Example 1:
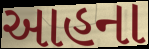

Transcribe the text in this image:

આહના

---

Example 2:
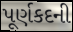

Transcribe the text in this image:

પૂર્ણકદની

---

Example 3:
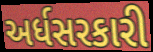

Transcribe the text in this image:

અર્ધસરકારી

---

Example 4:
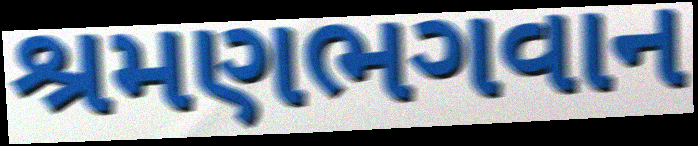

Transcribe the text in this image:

શ્રમણભગવાન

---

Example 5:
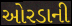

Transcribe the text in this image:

ઓરડાની